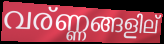
വര്ണ്ണങ്ങളില്